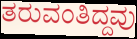
ತರುವಂತಿದ್ದವು